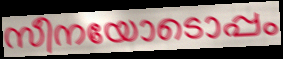
സീനയോടൊപ്പം